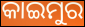
କାଇମୁର